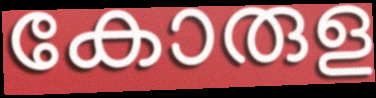
കോരുള